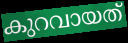
കുറവായത്